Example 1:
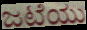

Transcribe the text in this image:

ಜಟೆಯು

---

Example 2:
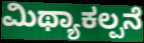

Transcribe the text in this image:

ಮಿಥ್ಯಾಕಲ್ಪನೆ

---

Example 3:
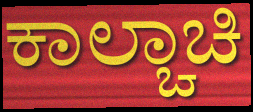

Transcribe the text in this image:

ಕಾಲ್ಚಾಚಿ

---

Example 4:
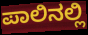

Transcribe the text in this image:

ಪಾಲಿನಲ್ಲಿ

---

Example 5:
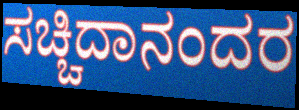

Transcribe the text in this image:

ಸಚ್ಚಿದಾನಂದರ